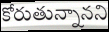
కోరుతున్నానని